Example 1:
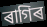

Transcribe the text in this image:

ৰাগিৰ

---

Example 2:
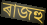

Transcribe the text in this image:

ৰাজহু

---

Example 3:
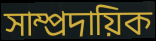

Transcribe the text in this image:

সাম্প্ৰদায়িক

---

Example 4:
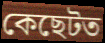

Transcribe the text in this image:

কেছেটত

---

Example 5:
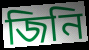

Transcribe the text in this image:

জিনি